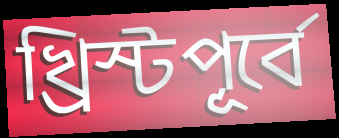
খ্রিস্টপূর্বে